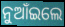
ନୁଆଁଇଲେ